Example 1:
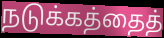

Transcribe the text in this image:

நடுக்கத்தைத்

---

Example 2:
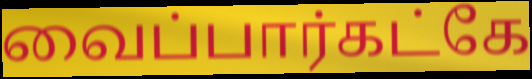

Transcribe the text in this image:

வைப்பார்கட்கே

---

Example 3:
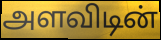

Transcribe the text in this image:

அளவிடின்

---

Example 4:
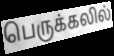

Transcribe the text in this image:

பெருக்கலில்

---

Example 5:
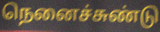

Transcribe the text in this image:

நெனைச்சுண்டு